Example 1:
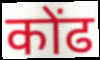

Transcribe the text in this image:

कोंढ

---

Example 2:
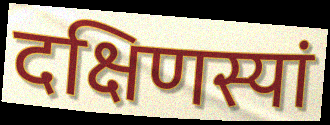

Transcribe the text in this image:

दक्षिणस्यां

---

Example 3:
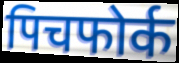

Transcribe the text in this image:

पिचफोर्क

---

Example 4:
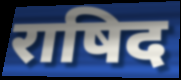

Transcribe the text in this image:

राषिद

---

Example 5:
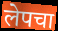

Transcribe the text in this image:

लेपचा